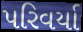
પરિવર્યા